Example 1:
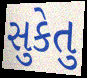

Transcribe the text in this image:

સુકેતુ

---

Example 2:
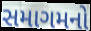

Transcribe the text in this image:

સમાગમનો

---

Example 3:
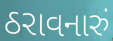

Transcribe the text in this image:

ઠરાવનારું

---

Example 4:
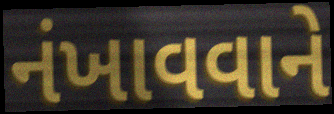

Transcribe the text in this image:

નંખાવવાને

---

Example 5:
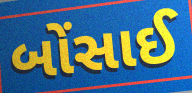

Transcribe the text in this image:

બોંસાઈ